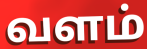
வளம்